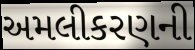
અમલીકરણની